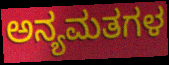
ಅನ್ಯಮತಗಳ